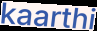
kaarthi